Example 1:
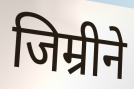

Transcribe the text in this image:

जिम्रीने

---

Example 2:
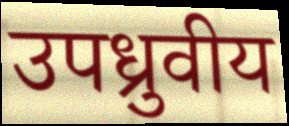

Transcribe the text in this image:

उपध्रुवीय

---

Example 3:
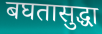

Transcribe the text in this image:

बघतासुद्धा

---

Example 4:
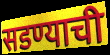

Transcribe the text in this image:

सडण्याची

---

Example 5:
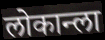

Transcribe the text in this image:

लोकान्ला